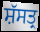
ਸ਼ੱਸਤ੍ਰ